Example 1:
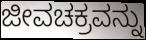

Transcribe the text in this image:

ಜೀವಚಕ್ರವನ್ನು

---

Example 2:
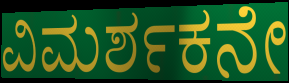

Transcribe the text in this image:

ವಿಮರ್ಶಕನೇ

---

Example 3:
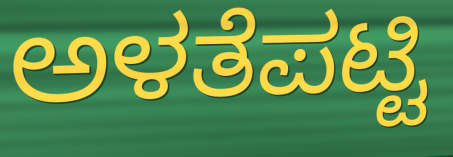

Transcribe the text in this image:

ಅಳತೆಪಟ್ಟಿ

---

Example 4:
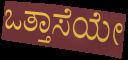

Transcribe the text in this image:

ಒತ್ತಾಸೆಯೇ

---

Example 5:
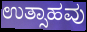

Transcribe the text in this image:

ಉತ್ಸಾಹವು